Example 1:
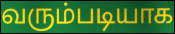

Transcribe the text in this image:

வரும்படியாக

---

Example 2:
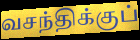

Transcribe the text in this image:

வசந்திக்குப்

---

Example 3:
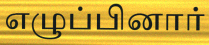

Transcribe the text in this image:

எழுப்பினார்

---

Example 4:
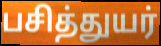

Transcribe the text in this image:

பசித்துயர்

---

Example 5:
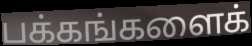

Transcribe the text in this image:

பக்கங்களைக்